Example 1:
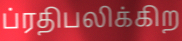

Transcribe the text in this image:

ப்ரதிபலிக்கிற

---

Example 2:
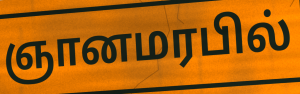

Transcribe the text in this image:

ஞானமரபில்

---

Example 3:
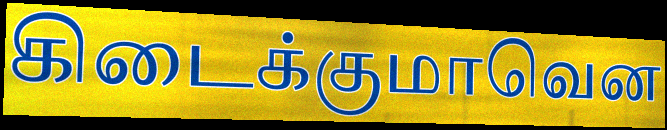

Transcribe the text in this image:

கிடைக்குமாவென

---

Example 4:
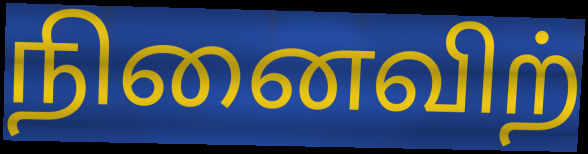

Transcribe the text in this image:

நினைவிற்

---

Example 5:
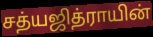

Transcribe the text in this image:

சத்யஜித்ராயின்